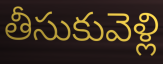
తీసుకువెళ్లి